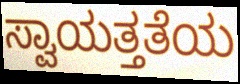
ಸ್ವಾಯತ್ತತೆಯ